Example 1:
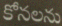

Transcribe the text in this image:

కోనలను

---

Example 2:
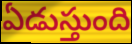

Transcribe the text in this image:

ఏడుస్తుంది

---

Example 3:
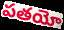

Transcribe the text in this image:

పతయో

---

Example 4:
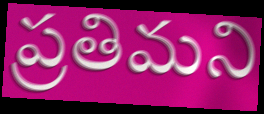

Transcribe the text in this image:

ప్రతిమని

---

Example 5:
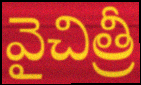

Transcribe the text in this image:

వైచిత్రీ